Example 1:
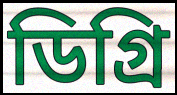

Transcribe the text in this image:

ডিগ্রি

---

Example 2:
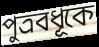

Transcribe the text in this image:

পুত্রবধূকে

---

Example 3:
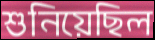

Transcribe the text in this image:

শুনিয়েছিল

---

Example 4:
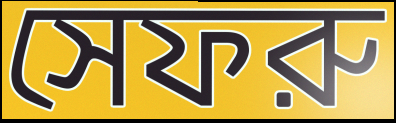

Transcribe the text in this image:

সেফরু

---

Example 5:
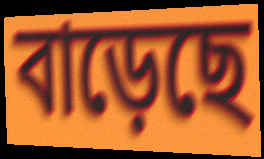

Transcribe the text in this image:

বাড়েছে